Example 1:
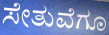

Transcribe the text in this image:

ಸೇತುವೆಗೂ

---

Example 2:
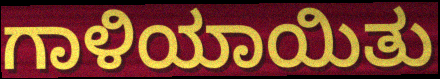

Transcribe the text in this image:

ಗಾಳಿಯಾಯಿತು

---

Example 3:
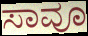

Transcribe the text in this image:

ಸಾವೂ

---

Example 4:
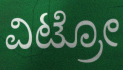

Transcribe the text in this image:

ವಿಟ್ರೋ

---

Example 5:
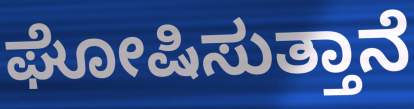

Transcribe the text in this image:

ಘೋಷಿಸುತ್ತಾನೆ